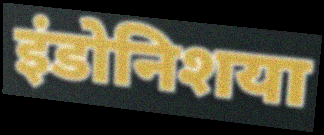
इंडोनिशया